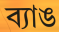
ব্যাঙ